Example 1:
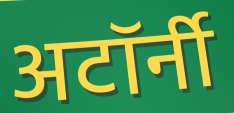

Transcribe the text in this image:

अटॉर्नी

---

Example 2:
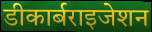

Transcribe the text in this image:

डीकार्बराइजेशन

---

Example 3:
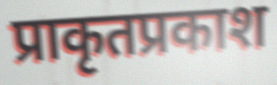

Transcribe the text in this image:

प्राकृतप्रकाश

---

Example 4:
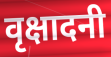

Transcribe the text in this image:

वृक्षादनी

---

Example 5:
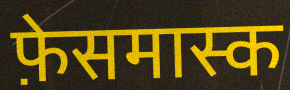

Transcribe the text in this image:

फ़ेसमास्क